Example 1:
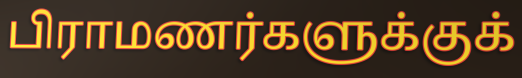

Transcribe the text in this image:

பிராமணர்களுக்குக்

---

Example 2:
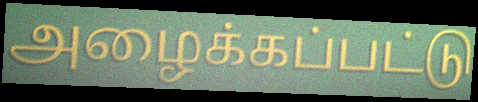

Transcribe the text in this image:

அழைக்கப்பட்டு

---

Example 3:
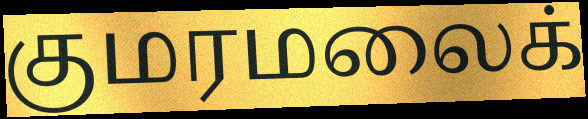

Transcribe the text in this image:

குமரமலைக்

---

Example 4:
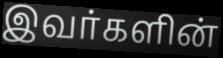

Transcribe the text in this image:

இவர்களின்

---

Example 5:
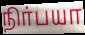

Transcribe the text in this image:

நிர்பயா